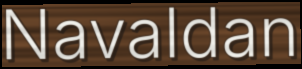
Navaldan